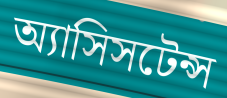
অ্যাসিসটেন্স